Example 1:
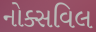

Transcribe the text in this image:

નોક્સવિલ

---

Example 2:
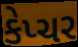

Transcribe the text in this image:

કેપ્ચર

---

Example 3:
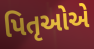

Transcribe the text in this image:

પિતૃઓએ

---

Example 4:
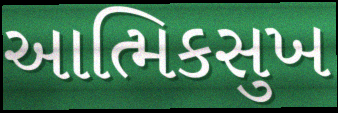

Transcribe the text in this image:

આત્મિકસુખ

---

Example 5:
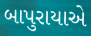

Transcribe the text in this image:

બાપુરાયાએ